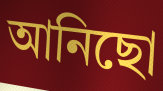
আনিছো